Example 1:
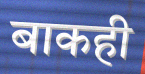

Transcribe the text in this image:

बाकही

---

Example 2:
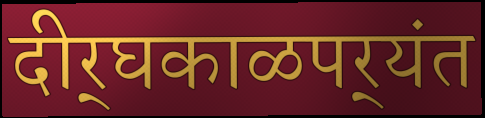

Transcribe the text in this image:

दीर्घकाळपर्यंत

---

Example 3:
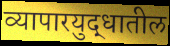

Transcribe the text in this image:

व्यापारयुद्धातील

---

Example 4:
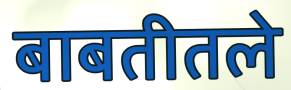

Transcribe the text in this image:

बाबतीतले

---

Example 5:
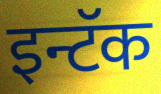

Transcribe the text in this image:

इन्टॅक